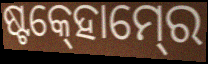
ଷ୍ଟକ୍‍ହୋମ୍‍ରେ